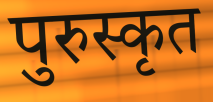
पुरुस्कृत